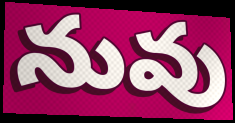
నువు